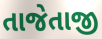
તાજેતાજી